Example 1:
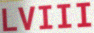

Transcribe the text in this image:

LVIII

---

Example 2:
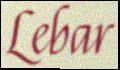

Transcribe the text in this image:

Lebar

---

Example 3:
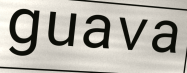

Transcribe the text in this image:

guava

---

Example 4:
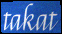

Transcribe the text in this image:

takat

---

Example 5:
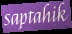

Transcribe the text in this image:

saptahik